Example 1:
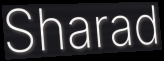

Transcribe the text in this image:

Sharad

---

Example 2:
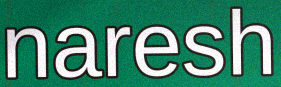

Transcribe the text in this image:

naresh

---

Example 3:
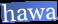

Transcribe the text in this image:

hawa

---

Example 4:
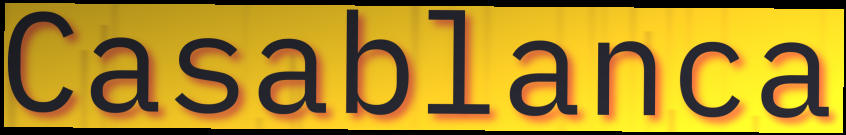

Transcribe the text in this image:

Casablanca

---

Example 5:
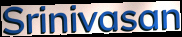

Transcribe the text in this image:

Srinivasan